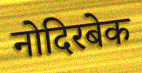
नोदिरबेक